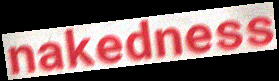
nakedness